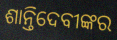
ଶାନ୍ତିଦେବୀଙ୍କର